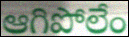
ఆగిపోలేం